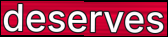
deserves